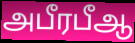
அபீரபீஆ